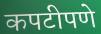
कपटीपणे